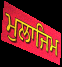
ਮੁਲਾਜਿਮ